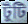
টুঁটি